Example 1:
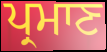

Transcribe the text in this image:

ਪ੍ਰਮਾਣ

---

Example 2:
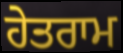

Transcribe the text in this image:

ਹੇਤਰਾਮ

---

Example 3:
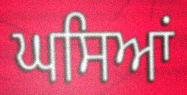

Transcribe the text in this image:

ਘਸਿਆਂ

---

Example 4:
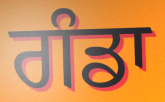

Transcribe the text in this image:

ਗੰਡਾ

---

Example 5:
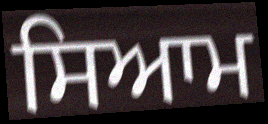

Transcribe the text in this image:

ਸਿਆਮ